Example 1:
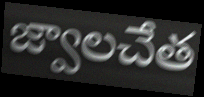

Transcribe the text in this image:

జ్వాలచేత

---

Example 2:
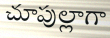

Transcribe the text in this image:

చూపుల్లాగా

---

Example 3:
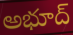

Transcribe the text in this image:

అభూద్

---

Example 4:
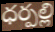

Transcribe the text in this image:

ధర్పల్లి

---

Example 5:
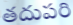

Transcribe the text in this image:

తదుపరి